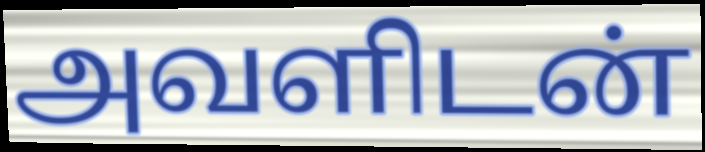
அவளிடன்